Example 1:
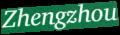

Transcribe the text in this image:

Zhengzhou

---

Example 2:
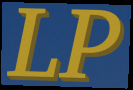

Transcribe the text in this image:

LP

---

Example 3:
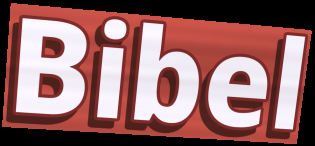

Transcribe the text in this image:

Bibel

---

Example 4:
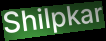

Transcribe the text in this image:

Shilpkar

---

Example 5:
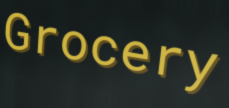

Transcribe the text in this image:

Grocery